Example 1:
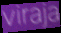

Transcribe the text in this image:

viraja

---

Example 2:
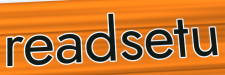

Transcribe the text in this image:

readsetu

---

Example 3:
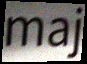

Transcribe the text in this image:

maj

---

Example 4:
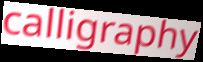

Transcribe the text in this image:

calligraphy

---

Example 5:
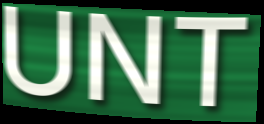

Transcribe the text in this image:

UNT